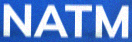
NATM